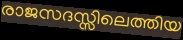
രാജസദസ്സിലെത്തിയ